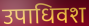
उपाधिवश